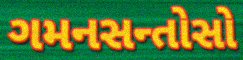
ગમનસન્તોસો